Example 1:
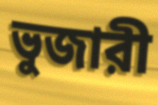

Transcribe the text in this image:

ভুজারী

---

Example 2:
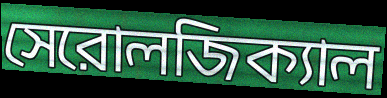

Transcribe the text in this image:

সেরোলজিক্যাল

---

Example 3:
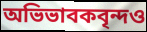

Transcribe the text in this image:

অভিভাবকবৃন্দও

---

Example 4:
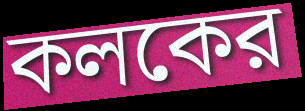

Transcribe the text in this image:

কলকের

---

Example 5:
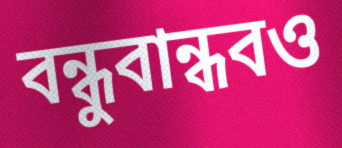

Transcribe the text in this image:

বন্ধুবান্ধবও